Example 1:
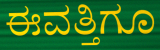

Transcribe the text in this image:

ಈವತ್ತಿಗೂ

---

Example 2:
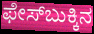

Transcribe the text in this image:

ಫೇಸ್‌ಬುಕ್ಕಿನ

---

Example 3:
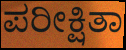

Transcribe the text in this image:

ಪರೀಕ್ಷಿತಾ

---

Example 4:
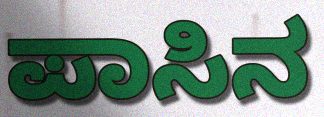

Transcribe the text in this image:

ಪಾಸಿನ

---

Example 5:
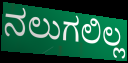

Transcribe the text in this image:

ನಲುಗಲಿಲ್ಲ